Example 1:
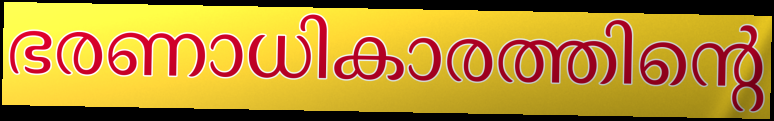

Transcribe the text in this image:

ഭരണാധികാരത്തിന്റെ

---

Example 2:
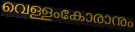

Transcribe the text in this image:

വെള്ളംകോരാനും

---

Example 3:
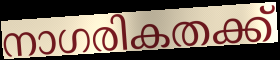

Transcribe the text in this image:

നാഗരികതക്ക്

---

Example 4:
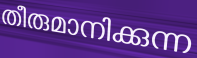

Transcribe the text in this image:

തീരുമാനിക്കുന്ന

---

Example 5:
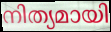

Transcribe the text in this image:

നിത്യമായി